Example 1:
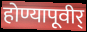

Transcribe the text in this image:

होण्यापूवीर्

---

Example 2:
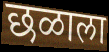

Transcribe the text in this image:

छळाला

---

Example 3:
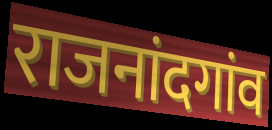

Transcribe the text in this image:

राजनांदगांव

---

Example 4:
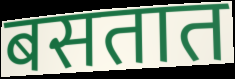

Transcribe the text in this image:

बसतात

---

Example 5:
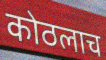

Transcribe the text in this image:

कोठलाच